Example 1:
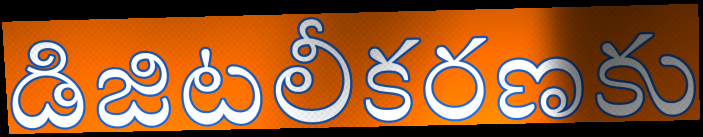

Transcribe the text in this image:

డిజిటలీకరణకు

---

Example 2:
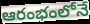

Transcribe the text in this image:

ఆరంభంలోనే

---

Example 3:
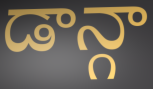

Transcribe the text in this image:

డాన్గా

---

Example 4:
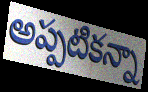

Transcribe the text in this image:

అప్పటికన్నా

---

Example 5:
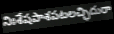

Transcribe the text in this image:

నిఃశేషపాశపటలచ్ఛిదురా